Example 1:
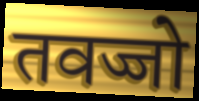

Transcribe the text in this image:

तवज्जो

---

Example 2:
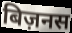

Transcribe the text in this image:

बिज़नस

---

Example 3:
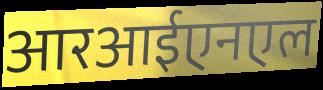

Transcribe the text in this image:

आरआईएनएल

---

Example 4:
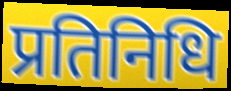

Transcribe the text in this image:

प्रतिनिधि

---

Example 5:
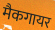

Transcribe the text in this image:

मैकगायर